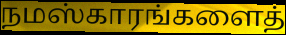
நமஸ்காரங்களைத்